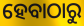
ହେବାଠାରୁ